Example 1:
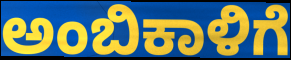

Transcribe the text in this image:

ಅಂಬಿಕಾಳಿಗೆ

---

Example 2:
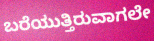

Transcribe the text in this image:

ಬರೆಯುತ್ತಿರುವಾಗಲೇ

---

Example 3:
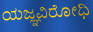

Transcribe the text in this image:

ಯಜ್ಞವಿರೋಧಿ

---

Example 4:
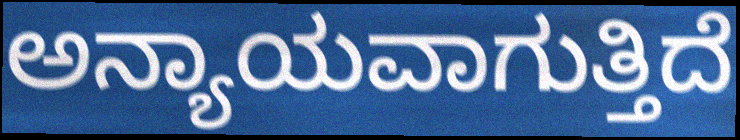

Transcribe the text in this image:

ಅನ್ಯಾಯವಾಗುತ್ತಿದೆ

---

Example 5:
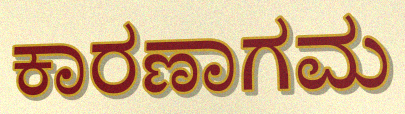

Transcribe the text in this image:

ಕಾರಣಾಗಮ